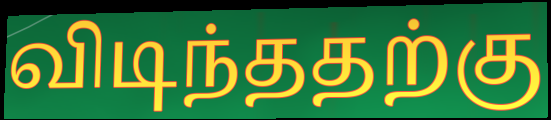
விடிந்ததற்கு